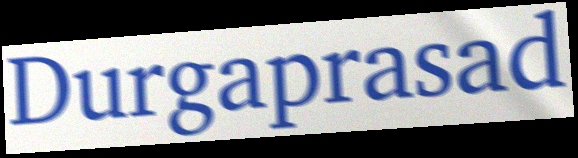
Durgaprasad